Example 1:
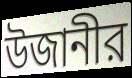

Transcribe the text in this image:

উজানীর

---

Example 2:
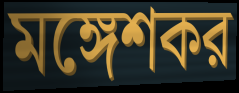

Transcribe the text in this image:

মঙ্গেশকর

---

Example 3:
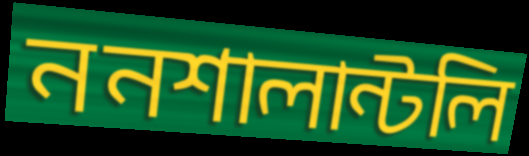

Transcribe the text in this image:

ননশালান্টলি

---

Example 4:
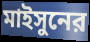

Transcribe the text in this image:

মাইসুনের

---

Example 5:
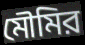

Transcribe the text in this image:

মৌমির